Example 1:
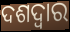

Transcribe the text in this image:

ଦଶଦ୍ୱାର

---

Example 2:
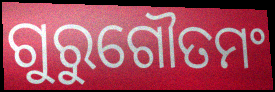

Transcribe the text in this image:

ଗୁରୁଗୌତମଂ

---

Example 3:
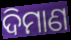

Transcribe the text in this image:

ଦିମାଣ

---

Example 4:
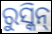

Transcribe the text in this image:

ରୁସ୍କିନ୍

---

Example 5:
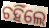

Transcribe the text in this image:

ଚହିଁଲେ